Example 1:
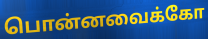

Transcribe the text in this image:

பொன்னவைக்கோ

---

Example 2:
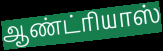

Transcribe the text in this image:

ஆண்ட்ரியாஸ்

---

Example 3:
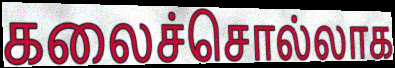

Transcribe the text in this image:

கலைச்சொல்லாக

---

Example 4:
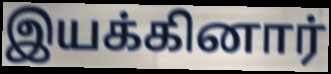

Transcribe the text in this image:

இயக்கினார்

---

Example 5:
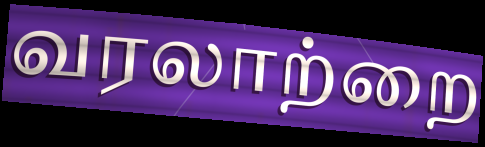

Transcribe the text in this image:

வரலாற்றை